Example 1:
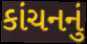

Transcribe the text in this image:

કાંચનનું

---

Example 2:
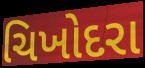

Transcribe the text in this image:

ચિખોદરા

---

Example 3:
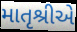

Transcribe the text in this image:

માતૃશ્રીએ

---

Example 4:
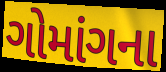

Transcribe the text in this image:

ગોમાંગના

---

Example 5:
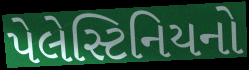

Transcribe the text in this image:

પેલેસ્ટિનિયનો